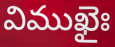
విముఖైః